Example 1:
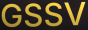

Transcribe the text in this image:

GSSV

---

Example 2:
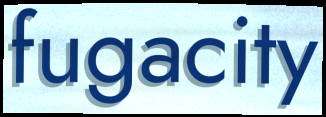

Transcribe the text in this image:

fugacity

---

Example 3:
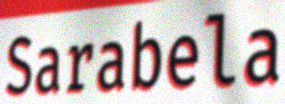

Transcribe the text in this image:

Sarabela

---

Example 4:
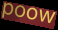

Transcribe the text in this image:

poow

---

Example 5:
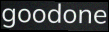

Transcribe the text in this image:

goodone